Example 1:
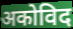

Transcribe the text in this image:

अकोविद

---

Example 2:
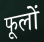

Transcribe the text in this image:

फूलों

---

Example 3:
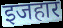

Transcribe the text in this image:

इजहार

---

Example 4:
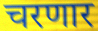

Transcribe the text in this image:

चरणार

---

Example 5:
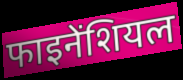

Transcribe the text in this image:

फाइनेंशियल